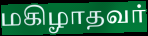
மகிழாதவர்